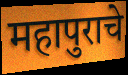
महापुराचे